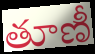
తూణీ